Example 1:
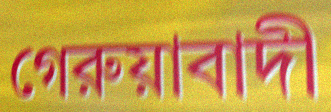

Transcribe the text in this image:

গেরুয়াবাদী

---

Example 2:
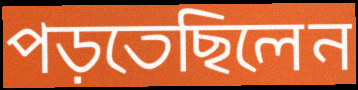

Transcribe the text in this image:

পড়তেছিলেন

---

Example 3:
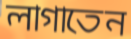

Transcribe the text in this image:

লাগাতেন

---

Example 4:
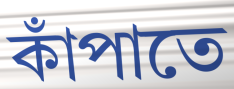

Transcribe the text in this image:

কাঁপাতে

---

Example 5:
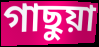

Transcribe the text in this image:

গাছুয়া